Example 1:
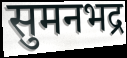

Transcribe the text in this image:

सुमनभद्र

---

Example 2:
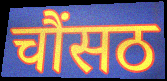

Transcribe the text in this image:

चौंसठ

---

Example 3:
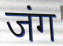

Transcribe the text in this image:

जंग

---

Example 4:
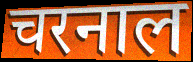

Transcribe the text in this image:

चरनाल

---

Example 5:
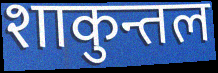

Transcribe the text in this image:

शाकुन्तल